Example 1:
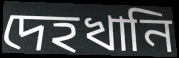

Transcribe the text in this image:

দেহখানি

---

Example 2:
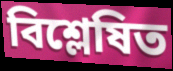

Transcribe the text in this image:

বিশ্লেষিত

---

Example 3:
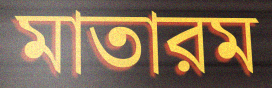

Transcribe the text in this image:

মাতারম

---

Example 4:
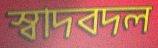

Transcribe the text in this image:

স্বাদবদল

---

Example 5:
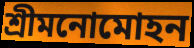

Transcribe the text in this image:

শ্রীমনোমোহন